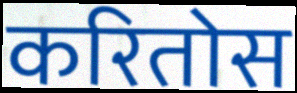
करितोस